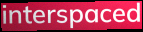
interspaced